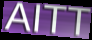
AITT